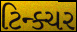
ટિન્ક્ચર